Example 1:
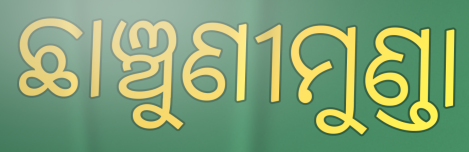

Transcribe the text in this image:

ଛାଞ୍ଚୁଣୀମୁଣ୍ଡା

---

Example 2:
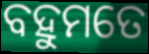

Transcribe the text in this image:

ବହୁମତେ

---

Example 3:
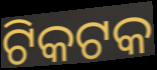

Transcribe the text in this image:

ଟିକଟକ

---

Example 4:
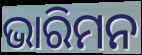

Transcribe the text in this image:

ଭାରିମନ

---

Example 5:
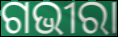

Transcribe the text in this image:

ଗଭୀରା